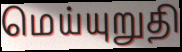
மெய்யுறுதி